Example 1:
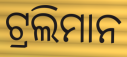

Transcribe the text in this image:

ଟ୍ରଲିମାନ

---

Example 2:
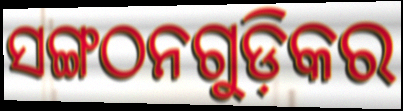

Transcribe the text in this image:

ସଙ୍ଗଠନଗୁଡ଼ିକର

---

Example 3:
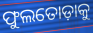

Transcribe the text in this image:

ଫୁଲତୋଡ଼ାକୁ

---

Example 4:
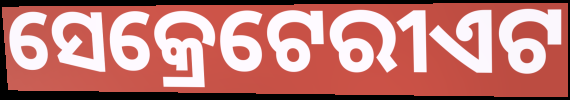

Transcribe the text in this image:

ସେକ୍ରେଟେରୀଏଟ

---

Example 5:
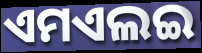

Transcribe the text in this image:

ଏମଏଲଇ